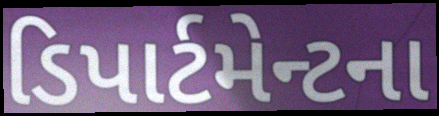
ડિપાર્ટમેન્ટના